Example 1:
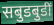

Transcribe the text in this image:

सबुडबुडीं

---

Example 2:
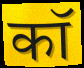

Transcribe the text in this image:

कॉ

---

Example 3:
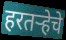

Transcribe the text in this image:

हरतऱ्हेचे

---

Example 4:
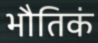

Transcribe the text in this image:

भौतिकं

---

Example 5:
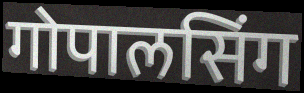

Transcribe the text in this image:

गोपालसिंग